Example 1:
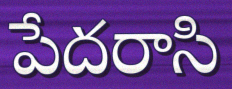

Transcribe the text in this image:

పేదరాసి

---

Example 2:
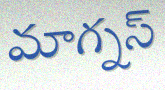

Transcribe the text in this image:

మాగ్నస్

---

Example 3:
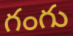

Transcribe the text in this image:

గంగు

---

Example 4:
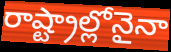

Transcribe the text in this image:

రాష్ట్రాల్లోనైనా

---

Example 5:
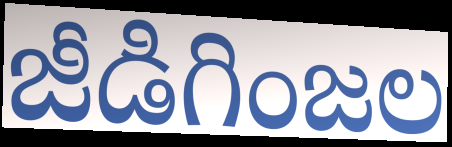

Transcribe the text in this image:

జీడిగింజల